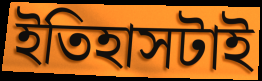
ইতিহাসটাই